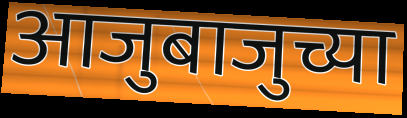
आजुबाजुच्या